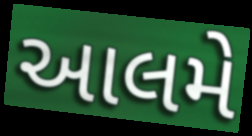
આલમે